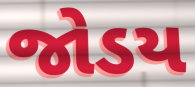
જોડય